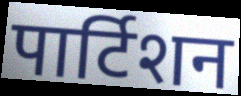
पार्टिशन